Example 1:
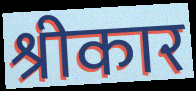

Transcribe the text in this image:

श्रीकार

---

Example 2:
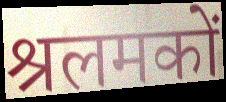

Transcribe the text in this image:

श्रलमकों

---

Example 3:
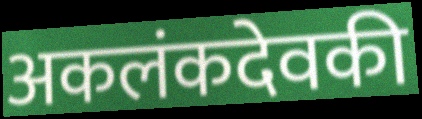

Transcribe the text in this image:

अकलंकदेवकी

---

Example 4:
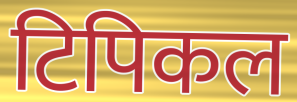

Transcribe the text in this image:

टिपिकल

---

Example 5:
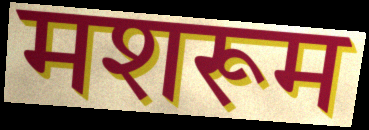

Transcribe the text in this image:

मशरूम